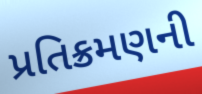
પ્રતિક્રમણની